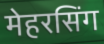
मेहरसिंग